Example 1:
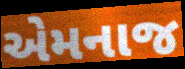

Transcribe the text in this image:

એમનાજ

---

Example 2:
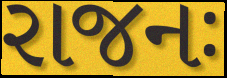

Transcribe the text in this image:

રાજનઃ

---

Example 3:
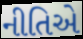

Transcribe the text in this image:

નીતિએ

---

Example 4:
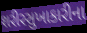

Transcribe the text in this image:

શરીરસુખાકારીના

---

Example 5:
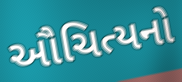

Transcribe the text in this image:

ઔચિત્યનો